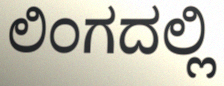
ಲಿಂಗದಲ್ಲಿ